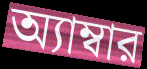
অ্যাম্বার